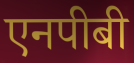
एनपीबी